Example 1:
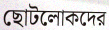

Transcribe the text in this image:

ছোটলোকদের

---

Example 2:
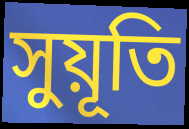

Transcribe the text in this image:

সুয়ূতি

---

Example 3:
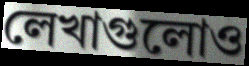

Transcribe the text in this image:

লেখাগুলোও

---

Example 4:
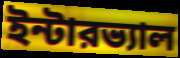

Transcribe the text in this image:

ইন্টারভ্যাল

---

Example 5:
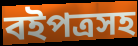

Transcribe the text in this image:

বইপত্রসহ